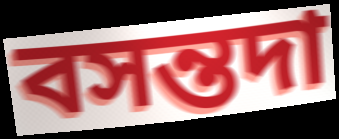
বসন্তদা